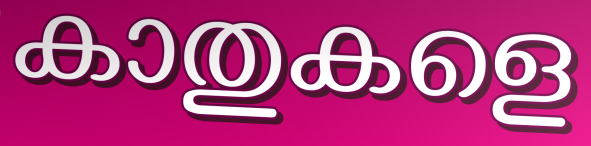
കാതുകളെ